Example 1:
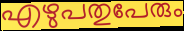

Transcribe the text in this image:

എഴുപതുപേരും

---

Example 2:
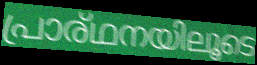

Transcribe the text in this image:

പ്രാര്ഥനയിലൂടെ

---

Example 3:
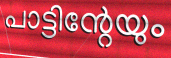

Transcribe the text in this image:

പാട്ടിന്റേയും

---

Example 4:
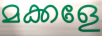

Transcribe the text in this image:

മക്കളേ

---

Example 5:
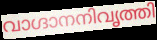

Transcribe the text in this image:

വാഗ്ദാനനിവൃത്തി